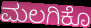
ಮಲಗಿಕೊ